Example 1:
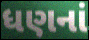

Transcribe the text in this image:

ધણનાં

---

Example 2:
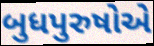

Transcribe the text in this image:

બુધપુરુષોએ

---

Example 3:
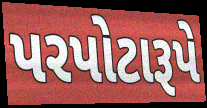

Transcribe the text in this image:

પરપોટારૂપે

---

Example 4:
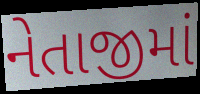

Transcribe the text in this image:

નેતાજીમાં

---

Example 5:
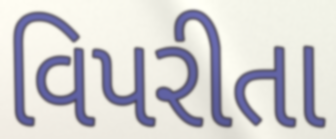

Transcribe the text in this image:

વિપરીતા